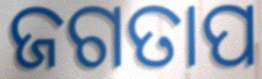
ଜଗତାପ